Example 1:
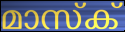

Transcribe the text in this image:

മാസ്‌ക്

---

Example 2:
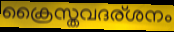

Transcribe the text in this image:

ക്രൈസ്തവദര്ശനം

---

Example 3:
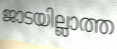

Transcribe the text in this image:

ജാടയില്ലാത്ത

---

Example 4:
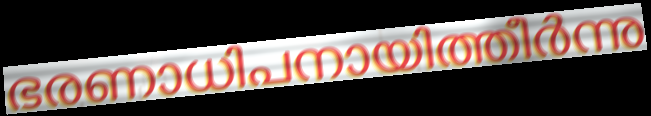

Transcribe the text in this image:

ഭരണാധിപനായിത്തീർന്നു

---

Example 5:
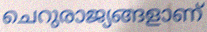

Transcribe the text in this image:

ചെറുരാജ്യങ്ങളാണ്